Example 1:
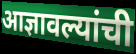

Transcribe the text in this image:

आज्ञावल्यांची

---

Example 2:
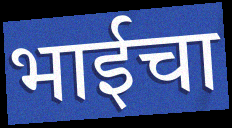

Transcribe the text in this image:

भाईचा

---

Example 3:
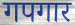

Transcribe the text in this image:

गपगार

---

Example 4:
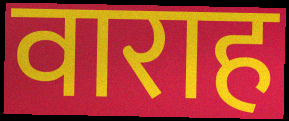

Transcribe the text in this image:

वाराह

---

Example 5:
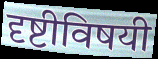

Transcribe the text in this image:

दृष्टीविषयी